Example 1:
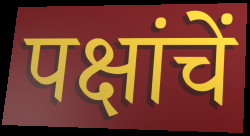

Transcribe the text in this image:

पक्षांचें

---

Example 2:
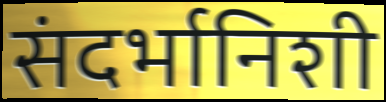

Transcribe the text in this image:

संदर्भानिशी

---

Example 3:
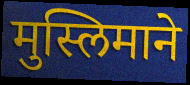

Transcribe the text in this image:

मुस्लिमाने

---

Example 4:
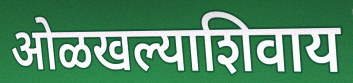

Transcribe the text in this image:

ओळखल्याशिवाय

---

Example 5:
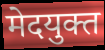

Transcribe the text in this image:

मेदयुक्त